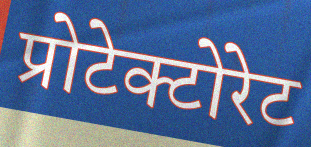
प्रोटेक्टोरेट